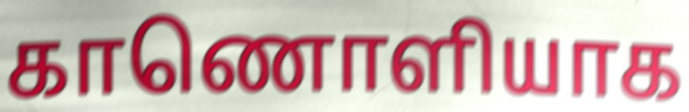
காணொளியாக